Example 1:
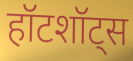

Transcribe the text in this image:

हॉटशॉट्स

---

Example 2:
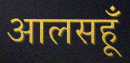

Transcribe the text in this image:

आलसहूँ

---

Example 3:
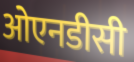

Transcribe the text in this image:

ओएनडीसी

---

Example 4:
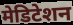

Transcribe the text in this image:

मेडिटेशन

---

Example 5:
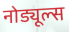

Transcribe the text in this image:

नोड्यूल्स